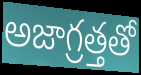
అజాగ్రత్తతో